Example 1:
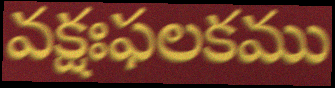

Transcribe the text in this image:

వక్షఃఫలకము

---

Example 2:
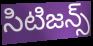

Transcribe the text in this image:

సిటిజన్స్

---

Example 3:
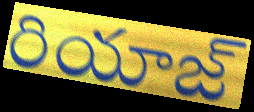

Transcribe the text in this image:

రియాజ్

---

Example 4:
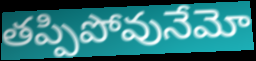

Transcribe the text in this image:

తప్పిపోవునేమో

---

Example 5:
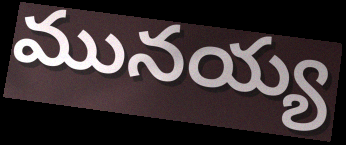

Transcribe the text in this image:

మునయ్య